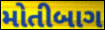
મોતીબાગ